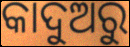
କାଦୁଅରୁ